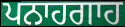
ਪਨਾਹਗਾਹ